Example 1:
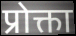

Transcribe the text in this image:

प्रोक्ता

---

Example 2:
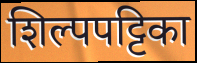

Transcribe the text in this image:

शिल्पपट्टिका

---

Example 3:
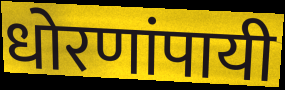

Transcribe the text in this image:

धोरणांपायी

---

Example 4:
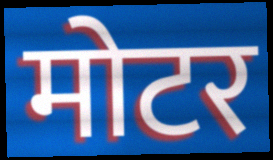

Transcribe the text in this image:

मोटर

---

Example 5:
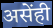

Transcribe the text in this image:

असेंही